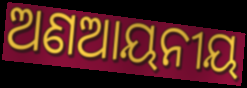
ଅଣଆୟନୀୟ